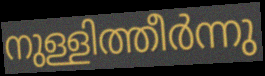
നുള്ളിത്തീർന്നു